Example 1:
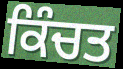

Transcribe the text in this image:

ਕਿੰਚਤ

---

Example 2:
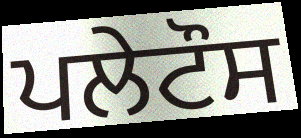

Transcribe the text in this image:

ਪਲੇਟੌਸ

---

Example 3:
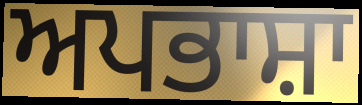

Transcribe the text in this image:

ਅਪਭਾਸ਼ਾ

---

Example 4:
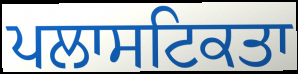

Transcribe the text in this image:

ਪਲਾਸਟਿਕਤਾ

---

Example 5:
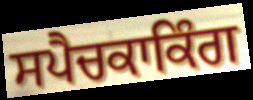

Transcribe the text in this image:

ਸਪੈਚਕਾਕਿੰਗ